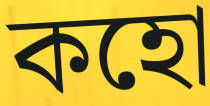
কহো